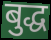
बुद्ध